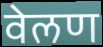
वेलण